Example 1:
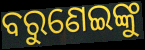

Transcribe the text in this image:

ବରୁଣେଇଙ୍କୁ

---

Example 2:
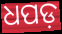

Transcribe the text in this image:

ଧପଡ଼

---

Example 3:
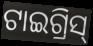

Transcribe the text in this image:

ଟାଇଗ୍ରିସ୍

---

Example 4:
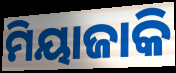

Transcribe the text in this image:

ମିୟାଜାକି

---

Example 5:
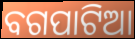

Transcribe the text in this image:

ବଗପାଟିଆ